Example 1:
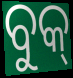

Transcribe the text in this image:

ବୁକ୍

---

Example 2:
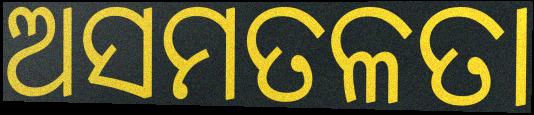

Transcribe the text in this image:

ଅସମତଳତା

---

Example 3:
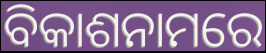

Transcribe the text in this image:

ବିକାଶନାମରେ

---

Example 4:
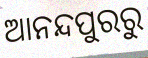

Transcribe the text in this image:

ଆନନ୍ଦପୁରରୁ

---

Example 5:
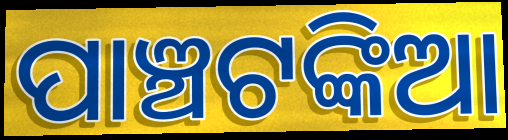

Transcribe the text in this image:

ପାଞ୍ଚଟଙ୍କିଆ